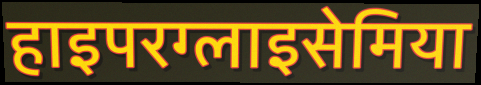
हाइपरग्लाइसेमिया